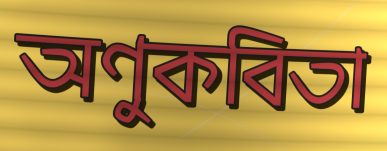
অণুকবিতা